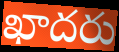
ఖాదరు